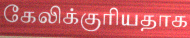
கேலிக்குரியதாக